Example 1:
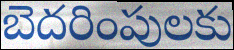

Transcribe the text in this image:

బెదరింపులకు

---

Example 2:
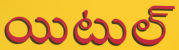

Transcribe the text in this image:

యిటుల్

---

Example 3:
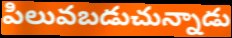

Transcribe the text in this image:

పిలువబడుచున్నాడు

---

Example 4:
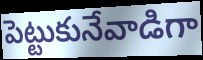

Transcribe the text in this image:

పెట్టుకునేవాడిగా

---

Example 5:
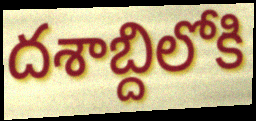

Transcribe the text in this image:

దశాబ్దిలోకి